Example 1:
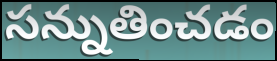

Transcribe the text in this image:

సన్నుతించడం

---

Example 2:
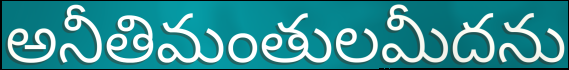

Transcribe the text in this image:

అనీతిమంతులమీదను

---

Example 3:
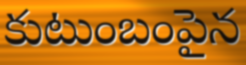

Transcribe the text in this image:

కుటుంబంపైన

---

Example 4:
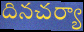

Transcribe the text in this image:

దినచర్యా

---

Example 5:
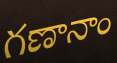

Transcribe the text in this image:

గణానాం